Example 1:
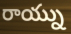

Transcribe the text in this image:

రాయ్ను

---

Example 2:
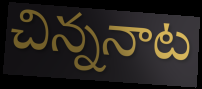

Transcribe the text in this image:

చిన్ననాట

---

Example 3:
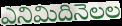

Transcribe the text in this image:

ఎనిమిదినెలల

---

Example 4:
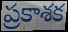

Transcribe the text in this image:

ప్రకాశక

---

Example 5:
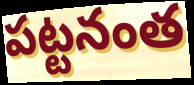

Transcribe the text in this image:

పట్టనంత